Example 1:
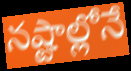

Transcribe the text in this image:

నష్టాల్లోనే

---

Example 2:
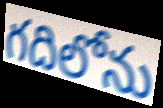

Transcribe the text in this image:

గదిలోను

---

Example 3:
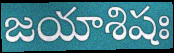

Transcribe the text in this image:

జయాశిషః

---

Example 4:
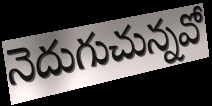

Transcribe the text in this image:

నెదుగుచున్నవో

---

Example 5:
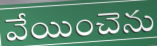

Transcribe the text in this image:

వేయించెను